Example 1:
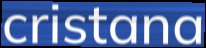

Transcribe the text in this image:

cristana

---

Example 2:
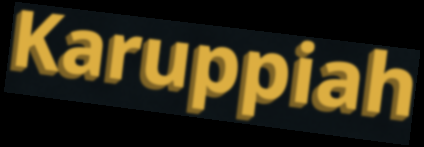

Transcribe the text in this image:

Karuppiah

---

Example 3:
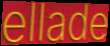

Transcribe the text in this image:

ellade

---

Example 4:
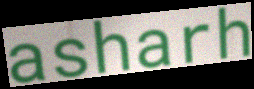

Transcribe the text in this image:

asharh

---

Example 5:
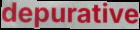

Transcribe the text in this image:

depurative